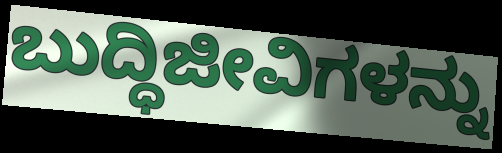
ಬುದ್ಧಿಜೀವಿಗಳನ್ನು